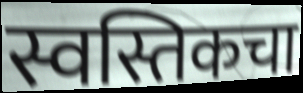
स्वस्तिकचा